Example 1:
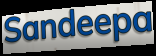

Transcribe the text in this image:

Sandeepa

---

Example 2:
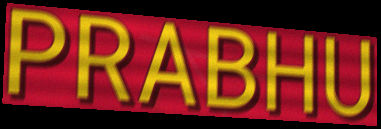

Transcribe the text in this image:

PRABHU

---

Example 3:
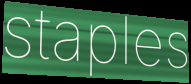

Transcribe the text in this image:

staples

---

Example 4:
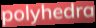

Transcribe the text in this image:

polyhedra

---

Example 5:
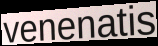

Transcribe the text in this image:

venenatis